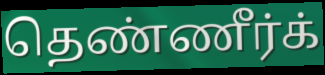
தெண்ணீர்க்